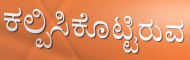
ಕಲ್ಪಿಸಿಕೊಟ್ಟಿರುವ